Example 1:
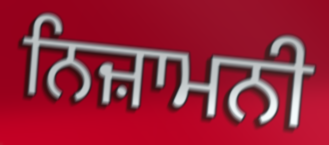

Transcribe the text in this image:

ਨਿਜ਼ਾਮਨੀ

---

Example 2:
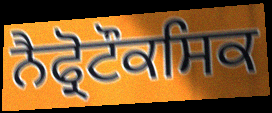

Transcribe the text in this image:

ਨੈਫ੍ਰੋਟੌਕਸਿਕ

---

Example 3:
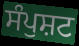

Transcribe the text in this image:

ਸੰਪੁਸ਼ਟ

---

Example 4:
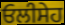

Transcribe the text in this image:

ਓਲੀਸੇਹ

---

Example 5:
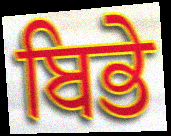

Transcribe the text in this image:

ਬਿਭੇ